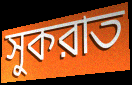
সুকরাত